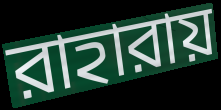
রাহারায়